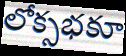
లోక్సభకూ